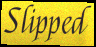
Slipped